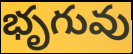
భృగువు